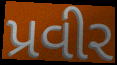
પ્રવીર